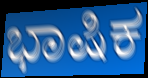
ಭಾಷಿಕ